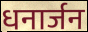
धनार्जन